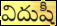
విదుషీ